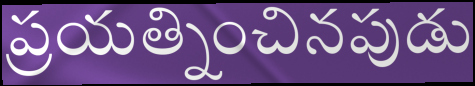
ప్రయత్నించినపుడు